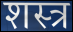
शस्त्र